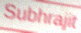
Subhrajit